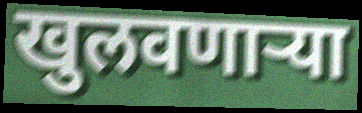
खुलवणाऱ्या